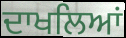
ਦਾਖਲਿਆਂ